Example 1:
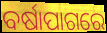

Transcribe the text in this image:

ବର୍ଷାପାଗରେ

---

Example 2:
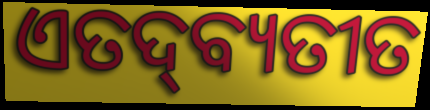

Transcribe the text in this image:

ଏତଦ୍‌ବ୍ୟତୀତ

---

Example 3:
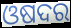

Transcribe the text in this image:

ଓଷଦର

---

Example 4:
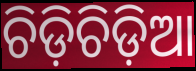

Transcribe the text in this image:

ଚିଡ଼ିଚିଡ଼ିଆ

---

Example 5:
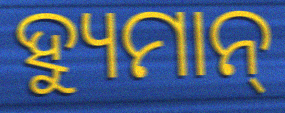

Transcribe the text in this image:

ହ୍ୟୁମାନ୍